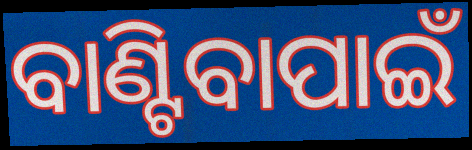
ବାଣ୍ଟିବାପାଇଁ